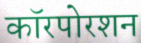
कॉरपोरशन